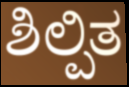
ಶಿಲ್ಪಿತ